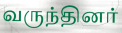
வருந்தினர்